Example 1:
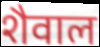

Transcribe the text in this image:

शैवाल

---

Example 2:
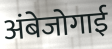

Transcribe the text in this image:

अंबेजोगाई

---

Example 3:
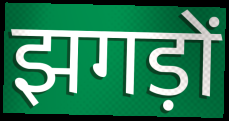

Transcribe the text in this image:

झगड़ों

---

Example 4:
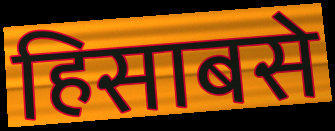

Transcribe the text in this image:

हिसाबसे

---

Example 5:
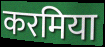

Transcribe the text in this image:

करमिया